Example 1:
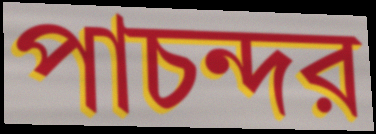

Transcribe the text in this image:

পাচন্দর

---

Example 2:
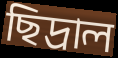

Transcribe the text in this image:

ছিদ্রাল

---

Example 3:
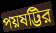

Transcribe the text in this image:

পয়ষট্টির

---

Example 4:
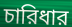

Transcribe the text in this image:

চারিধার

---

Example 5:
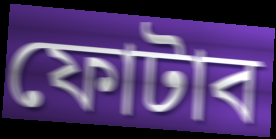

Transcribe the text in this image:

ফোটাব